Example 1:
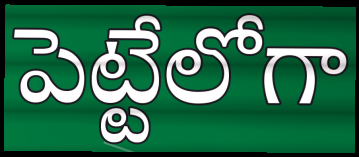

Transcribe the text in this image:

పెట్టేలోగా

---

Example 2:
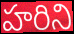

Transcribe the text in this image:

హరిని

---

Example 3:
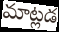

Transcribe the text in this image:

మాట్లడ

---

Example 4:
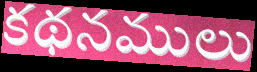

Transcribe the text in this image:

కథనములు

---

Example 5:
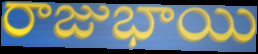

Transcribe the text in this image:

రాజుభాయి